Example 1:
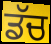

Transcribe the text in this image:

ਡੱਚ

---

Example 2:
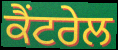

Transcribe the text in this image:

ਕੈਂਟਰੇਲ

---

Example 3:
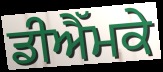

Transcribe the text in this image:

ਡੀਐੱਮਕੇ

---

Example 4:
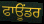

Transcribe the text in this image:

ਫਾਊਂਡਰ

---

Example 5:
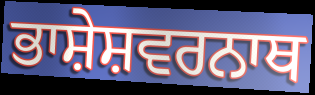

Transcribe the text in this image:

ਭਾਸ਼ੇਸ਼ਵਰਨਾਥ